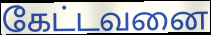
கேட்டவனை